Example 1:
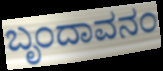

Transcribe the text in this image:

ಬೃಂದಾವನಂ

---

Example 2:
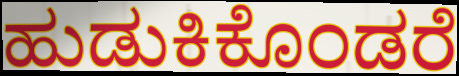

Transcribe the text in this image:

ಹುಡುಕಿಕೊಂಡರೆ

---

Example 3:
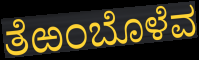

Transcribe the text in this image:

ತೆಱಂಬೊಳೆವ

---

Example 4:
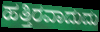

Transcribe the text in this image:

ಹತ್ತಿರವಾದುದು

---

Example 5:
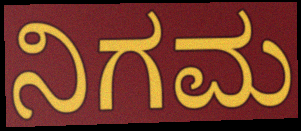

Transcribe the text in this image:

ನಿಗಮ